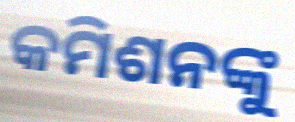
କମିଶନଙ୍କୁ